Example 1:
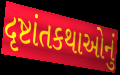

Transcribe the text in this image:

દૃષ્ટાંતકથાઓનું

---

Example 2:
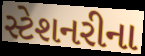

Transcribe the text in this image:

સ્ટેશનરીના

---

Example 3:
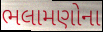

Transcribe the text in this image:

ભલામણોના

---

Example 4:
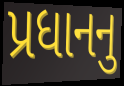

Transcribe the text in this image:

પ્રધાનનુ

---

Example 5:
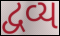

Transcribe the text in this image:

દ્વવ્ય